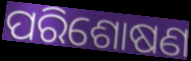
ପରିଶୋଷଣ